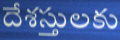
దేశస్తులకు